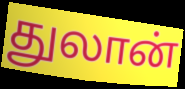
துலான்